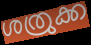
ശത്രുക്ക